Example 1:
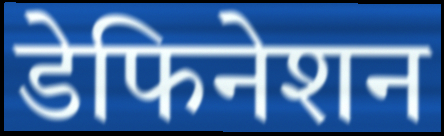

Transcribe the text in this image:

डेफिनेशन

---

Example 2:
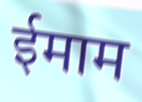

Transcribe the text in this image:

ईमाम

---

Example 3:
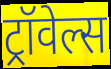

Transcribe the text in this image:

ट्रॉवेल्स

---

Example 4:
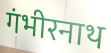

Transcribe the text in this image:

गंभीरनाथ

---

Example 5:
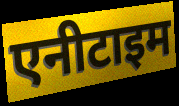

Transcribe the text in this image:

एनीटाइम